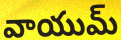
వాయుమ్